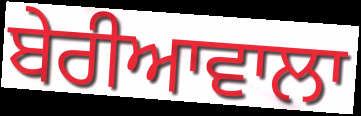
ਬੇਰੀਆਵਾਲਾ